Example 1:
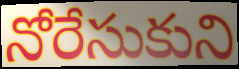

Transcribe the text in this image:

నోరేసుకుని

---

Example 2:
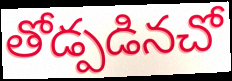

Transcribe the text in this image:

తోడ్పడినచో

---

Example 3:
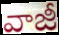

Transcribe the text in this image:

వాజీ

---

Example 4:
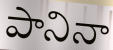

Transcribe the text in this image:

పానినా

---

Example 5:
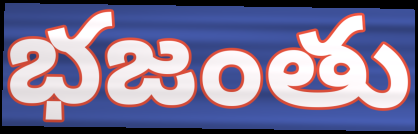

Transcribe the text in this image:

భజంతు